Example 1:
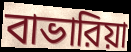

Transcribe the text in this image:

বাভারিয়া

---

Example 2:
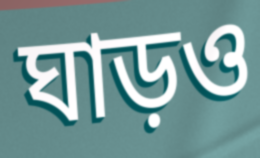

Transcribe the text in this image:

ঘাড়ও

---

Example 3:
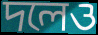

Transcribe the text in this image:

দলেও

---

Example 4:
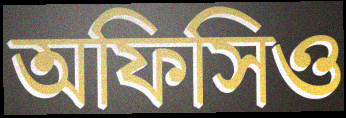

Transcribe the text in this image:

অফিসিও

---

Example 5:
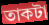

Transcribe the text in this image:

তাকটা